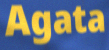
Agata